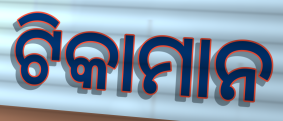
ଟିକାମାନ